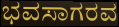
ಭವಸಾಗರವ